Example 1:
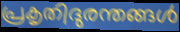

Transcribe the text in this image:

പ്രകൃതിദുരന്തങ്ങൾ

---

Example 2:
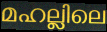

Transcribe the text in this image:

മഹല്ലിലെ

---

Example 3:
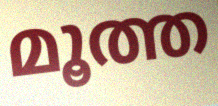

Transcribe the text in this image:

മൂത്ത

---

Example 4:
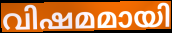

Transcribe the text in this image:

വിഷമമായി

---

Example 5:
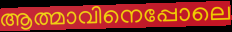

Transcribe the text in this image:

ആത്മാവിനെപ്പോലെ